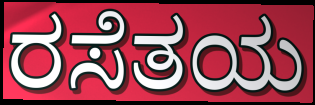
ರಸೆತಯ